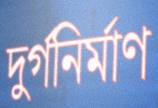
দুর্গনির্মাণ